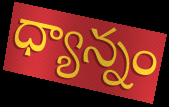
ధ్యాన్నం